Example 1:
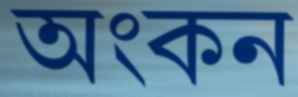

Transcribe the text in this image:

অংকন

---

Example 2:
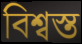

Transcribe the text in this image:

বিশ্বস্ত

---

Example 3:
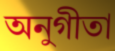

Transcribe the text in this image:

অনুগীতা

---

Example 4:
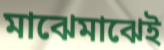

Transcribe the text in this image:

মাঝেমাঝেই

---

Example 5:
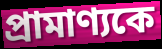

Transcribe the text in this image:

প্রামাণ্যকে